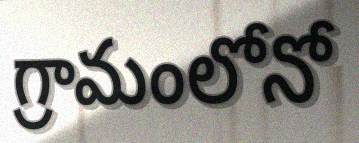
గ్రామంలోనో